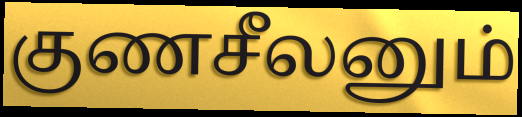
குணசீலனும்